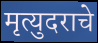
मृत्युदराचे